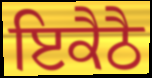
ਇਕੈਠੈ